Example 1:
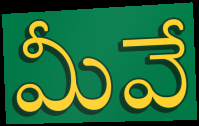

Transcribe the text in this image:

మీవే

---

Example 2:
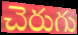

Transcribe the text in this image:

చెరుగు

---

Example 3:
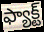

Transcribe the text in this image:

ఫ్యాక్ట్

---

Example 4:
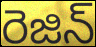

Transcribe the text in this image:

రెజిన్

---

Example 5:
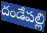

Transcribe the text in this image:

దండేపల్లి